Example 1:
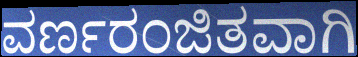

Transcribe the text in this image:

ವರ್ಣರಂಜಿತವಾಗಿ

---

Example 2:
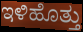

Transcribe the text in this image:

ಇಳಿಹೊತ್ತು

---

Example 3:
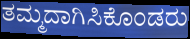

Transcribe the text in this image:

ತಮ್ಮದಾಗಿಸಿಕೊಂಡರು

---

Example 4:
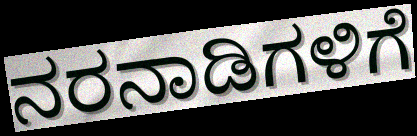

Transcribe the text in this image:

ನರನಾಡಿಗಳಿಗೆ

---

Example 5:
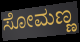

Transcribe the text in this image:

ಸೋಮಣ್ಣ